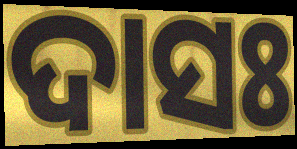
ଦାସଃ